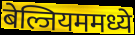
बेल्जियममध्ये